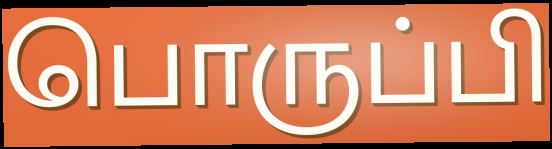
பொருப்பி